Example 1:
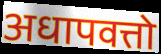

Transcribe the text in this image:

अधापवत्तो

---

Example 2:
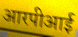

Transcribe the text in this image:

आरपीआई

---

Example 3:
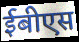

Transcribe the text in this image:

ईबीएस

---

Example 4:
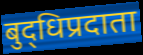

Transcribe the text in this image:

बुद्धिप्रदाता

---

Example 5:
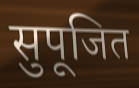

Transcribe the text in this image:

सुपूजित